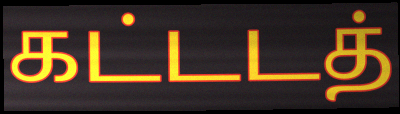
கட்டடத்